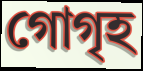
গোগৃহ